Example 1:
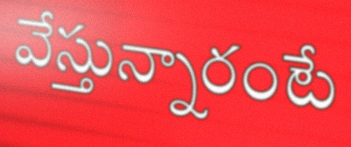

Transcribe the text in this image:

వేస్తున్నారంటే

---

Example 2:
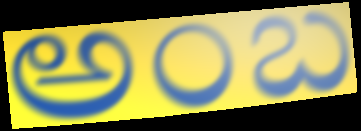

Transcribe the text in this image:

అంబ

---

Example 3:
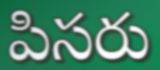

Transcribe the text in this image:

పిసరు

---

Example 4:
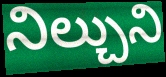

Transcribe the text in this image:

నిల్చుని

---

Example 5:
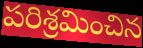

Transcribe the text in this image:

పరిశ్రమించిన